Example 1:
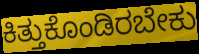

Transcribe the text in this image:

ಕಿತ್ತುಕೊಂಡಿರಬೇಕು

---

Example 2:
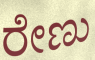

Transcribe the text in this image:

ರೇಣು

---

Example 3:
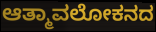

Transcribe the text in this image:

ಆತ್ಮಾವಲೋಕನದ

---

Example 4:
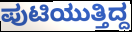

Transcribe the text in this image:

ಪುಟಿಯುತ್ತಿದ್ದ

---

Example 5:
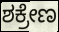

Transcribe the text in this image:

ಶಕ್ರೇಣ